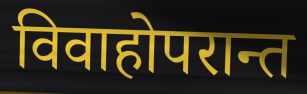
विवाहोपरान्त